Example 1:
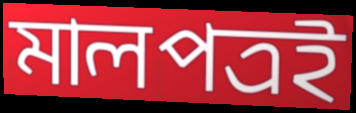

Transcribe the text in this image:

মালপত্রই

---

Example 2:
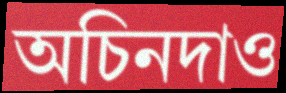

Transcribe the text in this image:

অচিনদাও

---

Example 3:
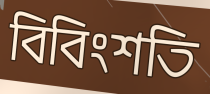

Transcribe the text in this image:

বিবিংশতি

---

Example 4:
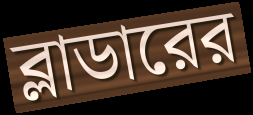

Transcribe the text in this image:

ব্লাডারের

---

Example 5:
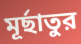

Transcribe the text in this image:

মূর্ছাতুর